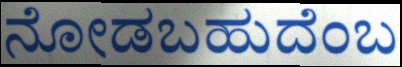
ನೋಡಬಹುದೆಂಬ